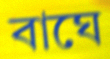
বাঘে